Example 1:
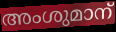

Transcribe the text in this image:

അംശുമാന്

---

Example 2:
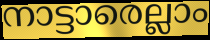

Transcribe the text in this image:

നാട്ടാരെല്ലാം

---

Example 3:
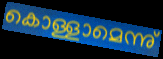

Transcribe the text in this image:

കൊള്ളാമെന്നു്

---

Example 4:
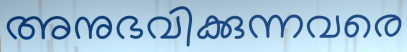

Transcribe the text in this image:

അനുഭവിക്കുന്നവരെ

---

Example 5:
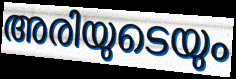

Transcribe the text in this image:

അരിയുടെയും